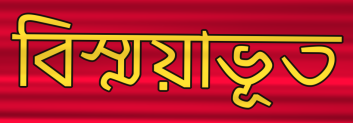
বিস্ময়াভূত